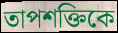
তাপশক্তিকে